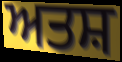
ਅਤਸ਼